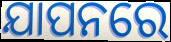
ଯାପନରେ